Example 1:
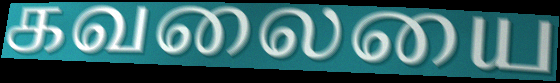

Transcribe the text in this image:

கவலையை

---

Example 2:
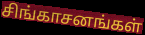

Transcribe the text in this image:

சிங்காசனங்கள்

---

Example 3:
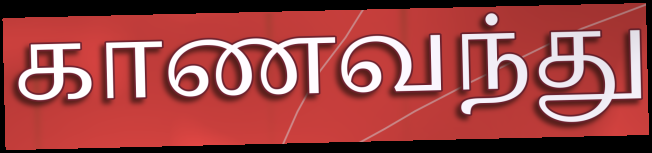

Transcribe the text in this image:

காணவந்து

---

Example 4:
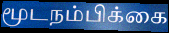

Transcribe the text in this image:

மூடநம்பிக்கை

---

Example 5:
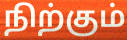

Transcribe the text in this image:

நிற்கும்